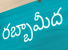
రబ్బామీద